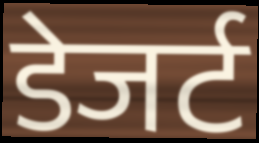
डेजर्ट